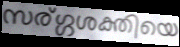
സര്ഗ്ഗശക്തിയെ